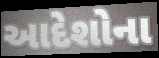
આદેશોના